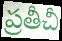
ప్రతీచీ